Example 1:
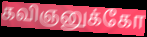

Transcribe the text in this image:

கவிஞனுக்கோ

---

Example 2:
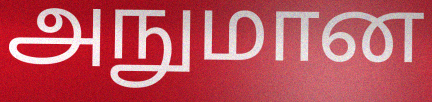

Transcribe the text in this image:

அநுமான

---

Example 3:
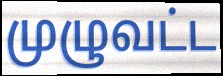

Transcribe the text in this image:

முழுவட்ட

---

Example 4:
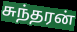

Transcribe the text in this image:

சுந்தரன்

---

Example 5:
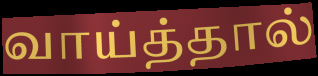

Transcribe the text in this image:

வாய்த்தால்